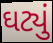
ઘટ્યું